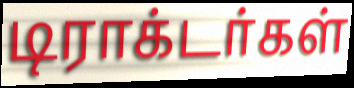
டிராக்டர்கள்